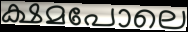
ക്ഷമപോലെ